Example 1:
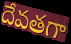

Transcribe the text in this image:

దేవతగా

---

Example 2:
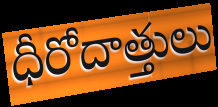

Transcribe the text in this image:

ధీరోదాత్తులు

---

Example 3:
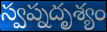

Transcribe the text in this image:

స్వప్నదృశ్యం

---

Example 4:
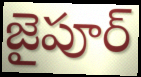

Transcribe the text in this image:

జైపూర్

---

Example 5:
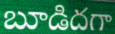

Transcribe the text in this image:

బూడిదగా